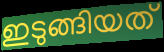
ഇടുങ്ങിയത്